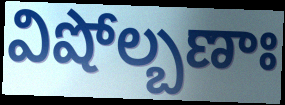
విషోల్బణాః